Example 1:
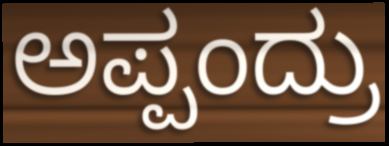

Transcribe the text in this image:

ಅಪ್ಪಂದ್ರು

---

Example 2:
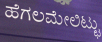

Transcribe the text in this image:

ಹೆಗಲಮೇಲಿಟ್ಟು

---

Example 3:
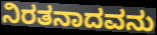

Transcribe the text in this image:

ನಿರತನಾದವನು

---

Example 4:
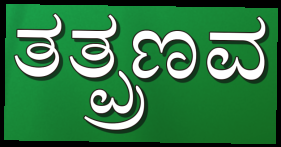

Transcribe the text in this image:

ತತ್ಪ್ರಣವ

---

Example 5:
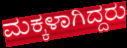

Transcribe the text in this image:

ಮಕ್ಕಳಾಗಿದ್ದರು